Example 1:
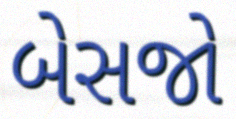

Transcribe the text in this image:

બેસજો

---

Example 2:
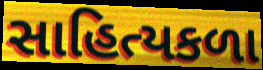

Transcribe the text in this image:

સાહિત્યકળા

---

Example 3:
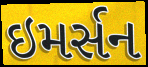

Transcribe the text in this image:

ઇમર્સન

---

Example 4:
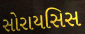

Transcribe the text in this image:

સોરાયસિસ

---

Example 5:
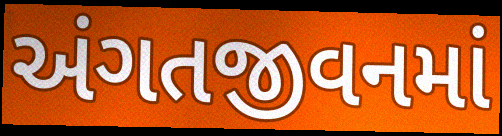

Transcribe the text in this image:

અંગતજીવનમાં